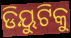
ଡିୟୁଟିକୁ